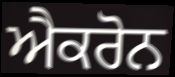
ਐਕਰੋਨ